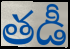
తడీ